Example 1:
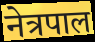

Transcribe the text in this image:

नेत्रपाल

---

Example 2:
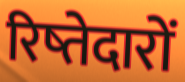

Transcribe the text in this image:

रिष्तेदारों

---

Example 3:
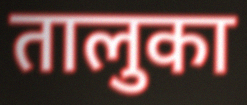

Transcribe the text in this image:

तालुका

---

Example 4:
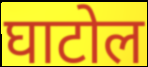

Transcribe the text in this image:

घाटोल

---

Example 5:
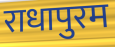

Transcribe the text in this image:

राधापुरम